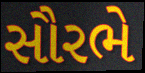
સૌરભે